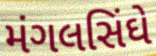
મંગલસિંઘે